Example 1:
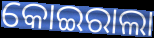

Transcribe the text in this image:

କୋଇରାଲା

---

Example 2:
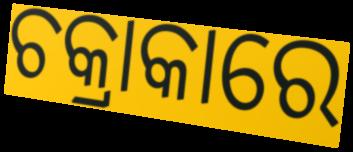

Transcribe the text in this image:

ଚକ୍ରାକାରେ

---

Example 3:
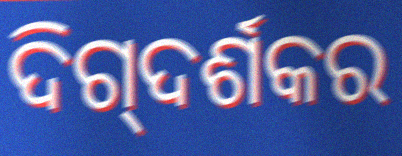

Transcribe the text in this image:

ଦିଗ୍‌ଦର୍ଶକର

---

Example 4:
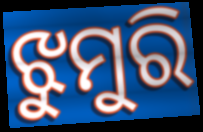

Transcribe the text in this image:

ଝୁମୁରି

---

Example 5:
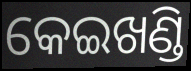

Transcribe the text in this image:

କେଇଖଣ୍ଡି